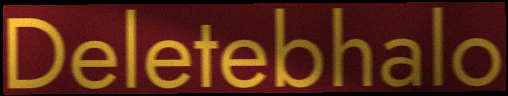
Deletebhalo